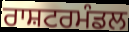
ਰਾਸ਼ਟਰਮੰਡਲ